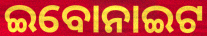
ଇବୋନାଇଟ